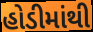
હોડીમાંથી